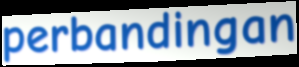
perbandingan